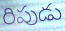
రిపుడు